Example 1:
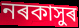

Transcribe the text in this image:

নৰকাসুৰ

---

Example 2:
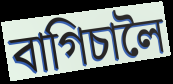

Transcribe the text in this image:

বাগিচালৈ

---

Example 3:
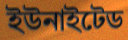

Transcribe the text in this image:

ইউনাইটেড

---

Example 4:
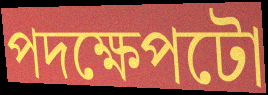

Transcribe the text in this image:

পদক্ষেপটো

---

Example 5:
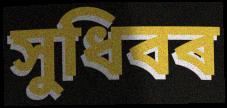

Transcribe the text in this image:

সুধিবৰ